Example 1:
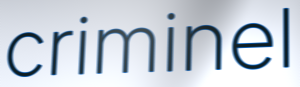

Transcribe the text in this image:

criminel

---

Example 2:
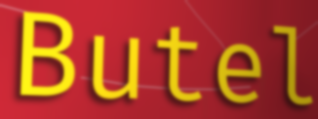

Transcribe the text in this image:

Butel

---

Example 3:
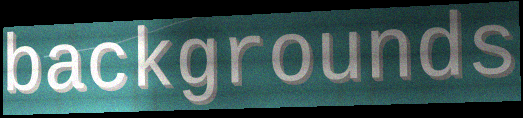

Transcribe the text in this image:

backgrounds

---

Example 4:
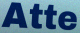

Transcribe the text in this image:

Atte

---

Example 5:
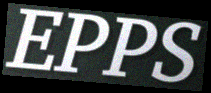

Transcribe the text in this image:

EPPS